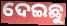
ଦେଇଛୁ